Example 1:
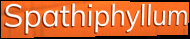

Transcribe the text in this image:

Spathiphyllum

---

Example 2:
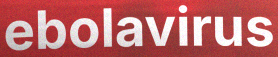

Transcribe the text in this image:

ebolavirus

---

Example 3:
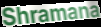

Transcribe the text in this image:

Shramana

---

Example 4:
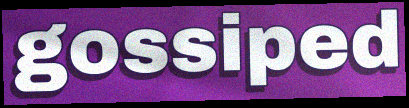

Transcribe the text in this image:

gossiped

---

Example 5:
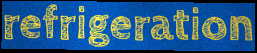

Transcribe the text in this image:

refrigeration